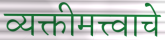
व्यक्तीमत्त्वाचे